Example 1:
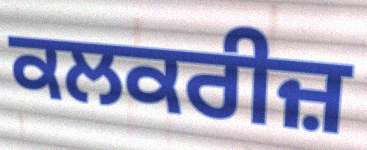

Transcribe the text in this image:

ਕਲਕਰੀਜ਼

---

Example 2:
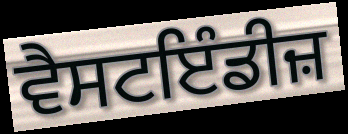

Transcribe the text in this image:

ਵੈਸਟਇੰਡੀਜ਼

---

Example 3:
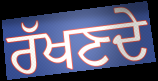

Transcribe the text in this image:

ਰੱਖਣਦੇ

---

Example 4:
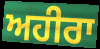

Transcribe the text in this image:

ਅਹੀਰਾ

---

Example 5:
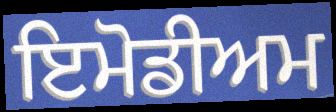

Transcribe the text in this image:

ਇਮੋਡੀਅਮ